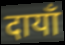
दायाँ